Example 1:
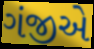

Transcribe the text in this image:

ગંજીએ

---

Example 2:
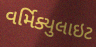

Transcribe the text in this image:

વર્મિક્યુલાઇટ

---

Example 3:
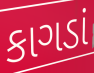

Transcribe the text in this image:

કાગડાં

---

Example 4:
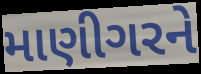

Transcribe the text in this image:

માણીગરને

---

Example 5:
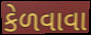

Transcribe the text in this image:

કેળવાવા